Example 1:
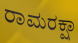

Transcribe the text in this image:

ರಾಮರಕ್ಷಾ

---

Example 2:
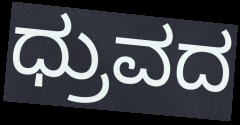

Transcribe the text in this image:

ಧ್ರುವದ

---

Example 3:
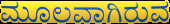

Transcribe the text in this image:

ಮೂಲವಾಗಿರುವ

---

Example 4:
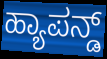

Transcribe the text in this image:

ಹ್ಯಾಪನ್ಡ್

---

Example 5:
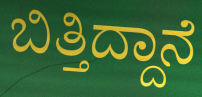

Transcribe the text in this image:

ಬಿತ್ತಿದ್ದಾನೆ